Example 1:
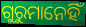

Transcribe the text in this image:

ଗୁରୁମାନେହିଁ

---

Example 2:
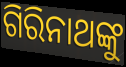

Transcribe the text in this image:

ଗିରିନାଥଙ୍କୁ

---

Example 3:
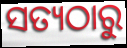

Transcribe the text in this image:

ସତ୍ୟଠାରୁ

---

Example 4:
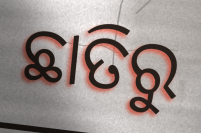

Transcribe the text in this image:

ଛାତିରୁ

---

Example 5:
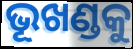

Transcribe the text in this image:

ଭୂଖଣ୍ଡକୁ